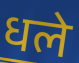
धले